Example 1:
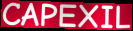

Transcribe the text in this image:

CAPEXIL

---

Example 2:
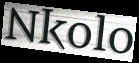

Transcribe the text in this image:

Nkolo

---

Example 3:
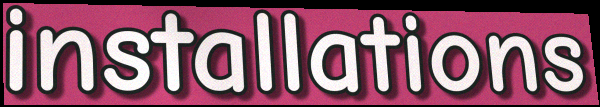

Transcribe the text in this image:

installations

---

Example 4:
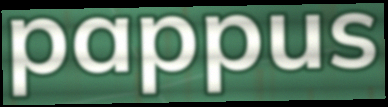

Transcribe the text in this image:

pappus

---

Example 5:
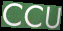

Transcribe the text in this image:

CCU